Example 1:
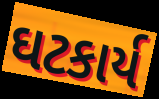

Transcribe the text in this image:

ઘટકાર્ય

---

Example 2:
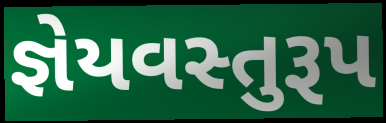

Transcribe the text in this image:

જ્ઞેયવસ્તુરૂપ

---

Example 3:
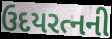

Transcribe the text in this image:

ઉદયરત્નની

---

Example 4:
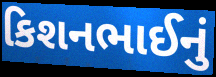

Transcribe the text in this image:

કિશનભાઈનું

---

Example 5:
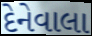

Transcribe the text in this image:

દેનેવાલા